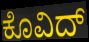
ಕೊವಿದ್